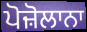
ਪੋਜ਼ੋਲਾਨਾ